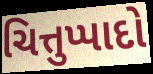
ચિત્તુપ્પાદો